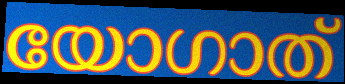
യോഗാത്